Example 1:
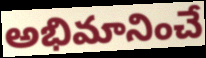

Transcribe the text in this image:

అభిమానించే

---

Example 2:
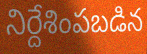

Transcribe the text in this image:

నిర్దేశింపబడిన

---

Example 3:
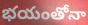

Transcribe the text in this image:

భయంతోనా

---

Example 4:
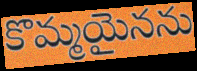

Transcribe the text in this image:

కొమ్మయైనను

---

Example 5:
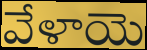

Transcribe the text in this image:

వేళాయె